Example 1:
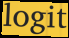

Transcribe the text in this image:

logit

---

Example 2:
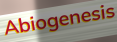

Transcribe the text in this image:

Abiogenesis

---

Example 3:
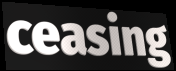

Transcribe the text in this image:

ceasing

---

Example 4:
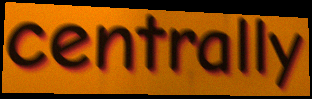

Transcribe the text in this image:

centrally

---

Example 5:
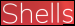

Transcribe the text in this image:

Shells